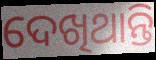
ଦେଖିଥାନ୍ତି